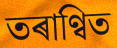
তৰাণ্বিত